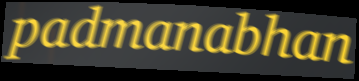
padmanabhan